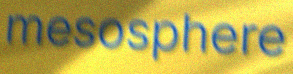
mesosphere